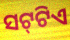
ସଟ୍‍ଟିଏ